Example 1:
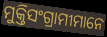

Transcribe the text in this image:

ମୁକ୍ତିସଂଗ୍ରାମୀମାନେ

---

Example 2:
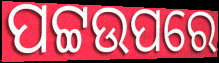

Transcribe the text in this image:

ପଟ୍ଟଉପରେ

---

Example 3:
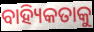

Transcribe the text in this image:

ବାହ୍ୟିକତାକୁ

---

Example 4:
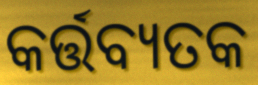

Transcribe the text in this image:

କର୍ତ୍ତବ୍ୟତକ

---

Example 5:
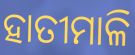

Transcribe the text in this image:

ହାତୀମାଳି